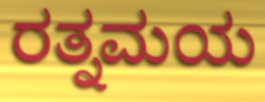
ರತ್ನಮಯ